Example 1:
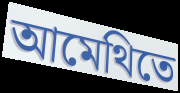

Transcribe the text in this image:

আমেথিতে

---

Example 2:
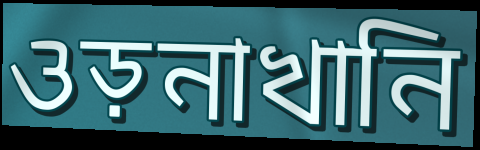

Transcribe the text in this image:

ওড়্নাখানি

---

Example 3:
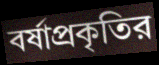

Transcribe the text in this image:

বর্ষাপ্রকৃতির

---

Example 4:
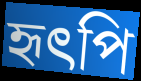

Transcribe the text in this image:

হৃৎপি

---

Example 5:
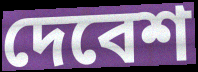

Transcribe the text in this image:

দেবেশ